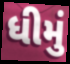
ધીમું